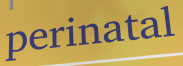
perinatal